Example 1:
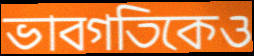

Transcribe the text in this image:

ভাবগতিকেও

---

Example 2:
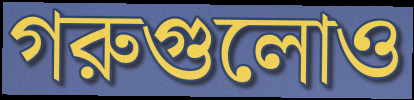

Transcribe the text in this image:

গরুগুলোও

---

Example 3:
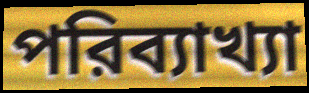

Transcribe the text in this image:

পরিব্যাখ্যা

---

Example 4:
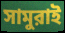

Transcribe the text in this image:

সামুরাই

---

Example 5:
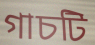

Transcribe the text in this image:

গাচটি